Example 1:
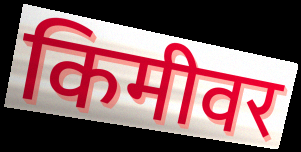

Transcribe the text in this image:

किमीवर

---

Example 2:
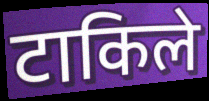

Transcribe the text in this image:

टाकिले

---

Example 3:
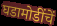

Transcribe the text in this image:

घडामोडींचें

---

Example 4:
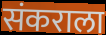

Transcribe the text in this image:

संकराला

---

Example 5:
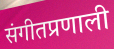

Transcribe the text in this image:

संगीतप्रणाली